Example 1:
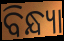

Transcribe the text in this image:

ବିନ୍ଧ୍ୟା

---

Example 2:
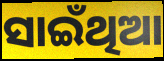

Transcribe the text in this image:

ସାଇଁଥିଆ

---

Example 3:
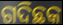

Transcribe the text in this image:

ଗଦିଛକ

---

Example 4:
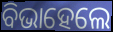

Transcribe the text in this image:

ବିଭାହେଲେ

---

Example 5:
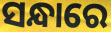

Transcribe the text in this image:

ସନ୍ଧାରେ